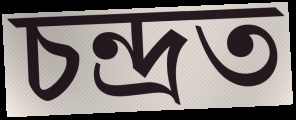
চন্দ্ৰত